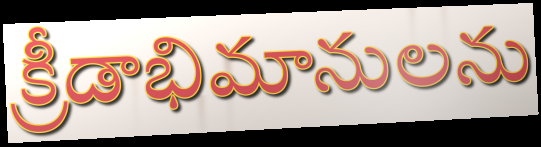
క్రీడాభిమానులను